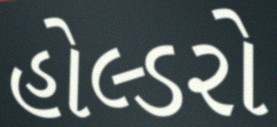
હોલ્ડરો